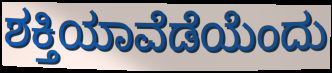
ಶಕ್ತಿಯಾವೆಡೆಯೆಂದು